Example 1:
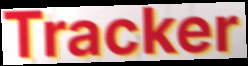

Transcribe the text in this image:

Tracker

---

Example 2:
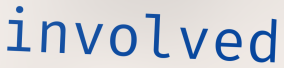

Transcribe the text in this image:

involved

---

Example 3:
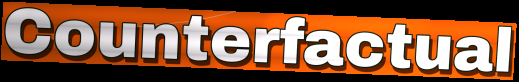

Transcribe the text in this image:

Counterfactual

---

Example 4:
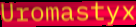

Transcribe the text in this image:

Uromastyx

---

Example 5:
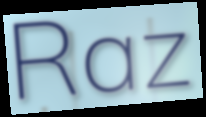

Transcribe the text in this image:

Raz